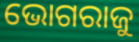
ଭୋଗରାଜୁ